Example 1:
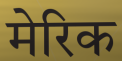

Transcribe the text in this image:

मेरिक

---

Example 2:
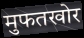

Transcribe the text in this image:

मुफतखोर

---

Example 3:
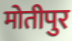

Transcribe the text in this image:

मोतीपुर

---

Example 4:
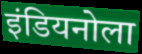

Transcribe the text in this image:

इंडियनोला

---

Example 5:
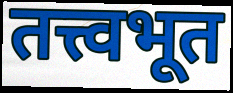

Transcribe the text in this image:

तत्त्वभूत